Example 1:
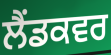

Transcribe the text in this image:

ਲੈਂਡਕਵਰ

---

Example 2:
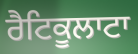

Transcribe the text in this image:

ਰੈਟਿਕੂਲਾਟਾ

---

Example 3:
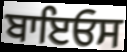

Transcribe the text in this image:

ਬਾਇਓਸ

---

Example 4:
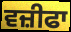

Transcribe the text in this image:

ਵਜ਼ੀਫਾ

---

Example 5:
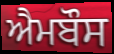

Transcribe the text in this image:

ਐਮਬੌਸ